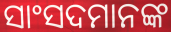
ସାଂସଦମାନଙ୍କ